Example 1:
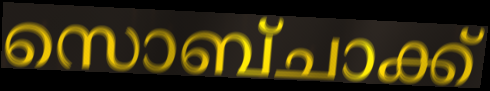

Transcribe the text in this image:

സൊബ്ചാക്ക്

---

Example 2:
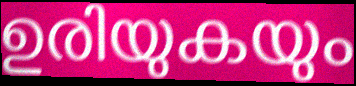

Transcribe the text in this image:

ഉരിയുകയും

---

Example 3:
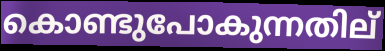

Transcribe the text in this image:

കൊണ്ടുപോകുന്നതില്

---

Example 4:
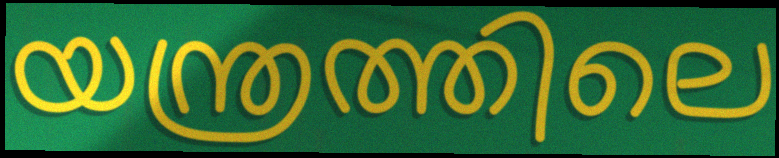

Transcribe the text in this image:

യന്ത്രത്തിലെ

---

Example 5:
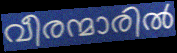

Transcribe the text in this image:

വീരന്മാരിൽ